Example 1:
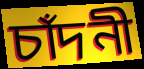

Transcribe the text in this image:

চাঁদনী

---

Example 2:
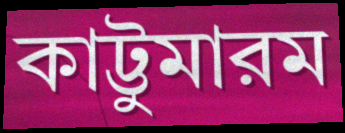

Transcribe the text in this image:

কাট্টুমারম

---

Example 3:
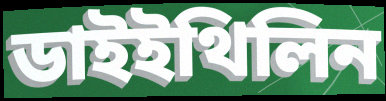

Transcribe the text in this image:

ডাইইথিলিন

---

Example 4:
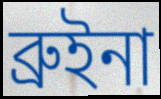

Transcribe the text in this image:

ব্রুইনা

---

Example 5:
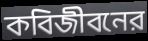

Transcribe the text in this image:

কবিজীবনের